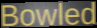
Bowled